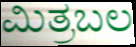
ಮಿತ್ರಬಲ